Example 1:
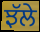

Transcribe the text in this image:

ਝੱਲੇ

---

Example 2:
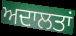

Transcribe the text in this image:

ਅਦਾਲਤਾਂ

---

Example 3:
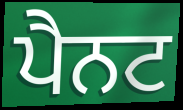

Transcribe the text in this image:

ਪੈਨਟ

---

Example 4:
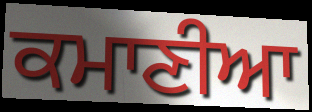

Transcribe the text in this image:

ਕਮਾਣੀਆ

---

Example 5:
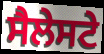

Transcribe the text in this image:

ਸੈਲੇਸਟੇ